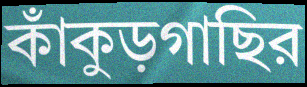
কাঁকুড়গাছির